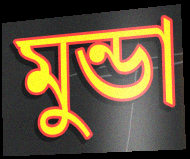
মুন্ডা